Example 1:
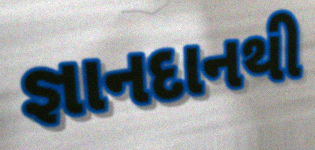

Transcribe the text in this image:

જ્ઞાનદાનથી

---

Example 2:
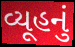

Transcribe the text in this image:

વ્યૂહનું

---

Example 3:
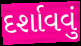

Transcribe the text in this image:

દર્શાવવું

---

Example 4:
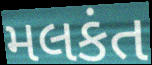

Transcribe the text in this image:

મલકંત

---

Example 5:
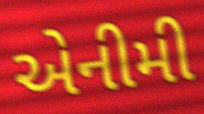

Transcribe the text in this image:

એનીમી